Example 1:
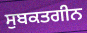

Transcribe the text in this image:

ਸੁਬਕਤਗੀਨ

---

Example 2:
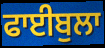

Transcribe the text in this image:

ਫਾਈਬੁਲਾ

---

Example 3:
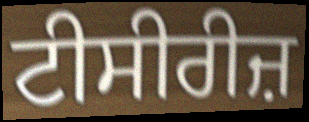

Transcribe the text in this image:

ਟੀਸੀਰੀਜ਼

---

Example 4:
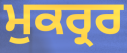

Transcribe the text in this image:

ਮੁਕਰ੍ਰਰ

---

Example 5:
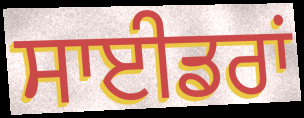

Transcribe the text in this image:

ਸਾਈਡਰਾਂ